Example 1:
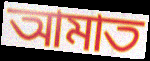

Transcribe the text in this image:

আমাত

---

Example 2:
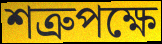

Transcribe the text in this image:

শত্রুপক্ষে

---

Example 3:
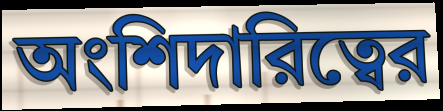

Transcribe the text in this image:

অংশিদারিত্বের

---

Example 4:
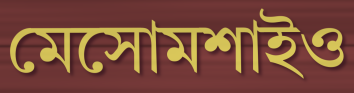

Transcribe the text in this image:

মেসোমশাইও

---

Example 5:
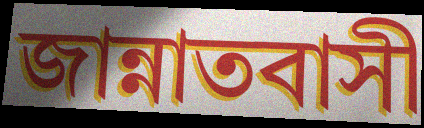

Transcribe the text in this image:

জান্নাতবাসী